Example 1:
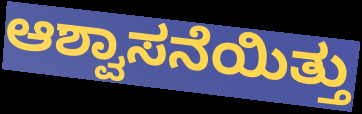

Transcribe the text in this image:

ಆಶ್ವಾಸನೆಯಿತ್ತು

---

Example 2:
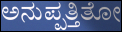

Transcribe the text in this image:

ಅನುಪ್ಪತ್ತಿತೋ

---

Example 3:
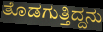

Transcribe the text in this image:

ತೊಡಗುತ್ತಿದ್ದನು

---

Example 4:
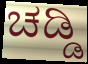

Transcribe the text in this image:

ಚಡ್ಡಿ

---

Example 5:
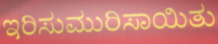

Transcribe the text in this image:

ಇರಿಸುಮುರಿಸಾಯಿತು